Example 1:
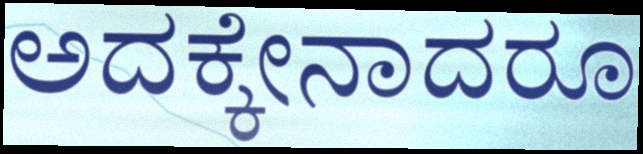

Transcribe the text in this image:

ಅದಕ್ಕೇನಾದರೂ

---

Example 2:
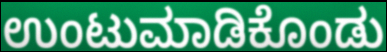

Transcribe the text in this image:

ಉಂಟುಮಾಡಿಕೊಂಡು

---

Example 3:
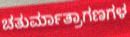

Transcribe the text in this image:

ಚತುರ್ಮಾತ್ರಾಗಣಗಳ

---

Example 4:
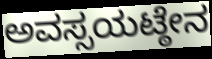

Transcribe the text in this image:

ಅವಸ್ಸಯಟ್ಠೇನ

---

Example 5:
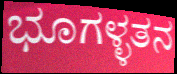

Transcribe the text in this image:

ಭೂಗಳ್ಳತನ